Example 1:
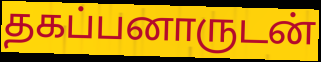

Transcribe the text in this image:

தகப்பனாருடன்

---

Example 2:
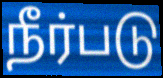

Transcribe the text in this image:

நீர்படு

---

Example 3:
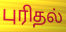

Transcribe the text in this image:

புரிதல்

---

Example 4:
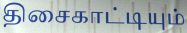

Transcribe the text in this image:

திசைகாட்டியும்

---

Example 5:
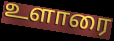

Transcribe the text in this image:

உளாரை